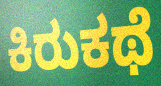
ಕಿರುಕಥೆ